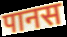
पानस